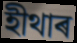
হীথাৰ